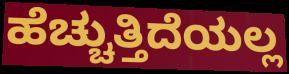
ಹೆಚ್ಚುತ್ತಿದೆಯಲ್ಲ